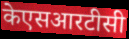
केएसआरटीसी